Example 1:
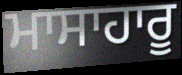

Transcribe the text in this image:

ਮਾਸਾਹਾਰੂ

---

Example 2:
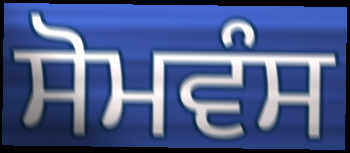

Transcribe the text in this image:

ਸੋਮਵੰਸ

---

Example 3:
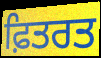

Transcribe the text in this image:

ਫ਼ਿਤਰਤ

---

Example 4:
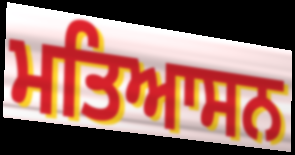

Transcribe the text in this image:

ਮਤਿਆਸਨ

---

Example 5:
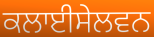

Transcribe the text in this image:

ਕਲਾਈਸੇਲਵਨ